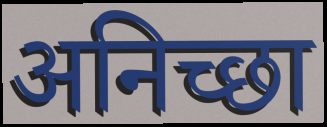
अनिच्छा